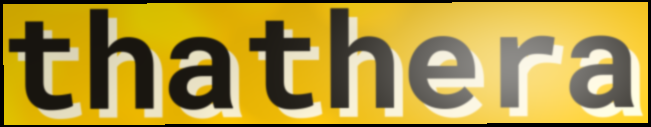
thathera